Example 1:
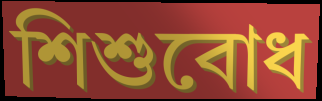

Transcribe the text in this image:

শিশুবোধ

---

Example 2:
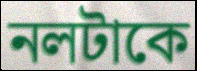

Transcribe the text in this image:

নলটাকে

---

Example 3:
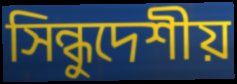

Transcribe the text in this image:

সিন্ধুদেশীয়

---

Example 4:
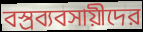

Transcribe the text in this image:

বস্ত্রব্যবসায়ীদের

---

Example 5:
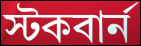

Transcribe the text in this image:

স্টকবার্ন